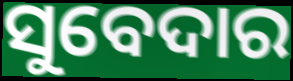
ସୁବେଦାର